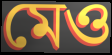
মেও